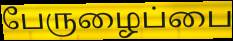
பேருழைப்பை